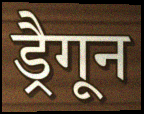
ड्रैगून